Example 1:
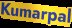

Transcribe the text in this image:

Kumarpal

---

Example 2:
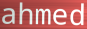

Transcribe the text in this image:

ahmed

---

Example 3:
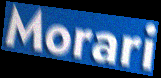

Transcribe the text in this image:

Morari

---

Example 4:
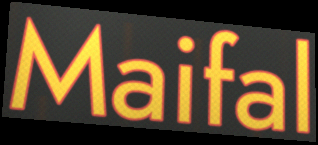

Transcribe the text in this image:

Maifal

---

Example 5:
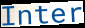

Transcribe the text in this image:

Inter